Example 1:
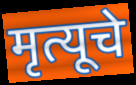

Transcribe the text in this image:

मृत्यूचे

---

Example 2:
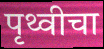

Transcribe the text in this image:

पृथ्वीचा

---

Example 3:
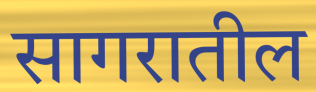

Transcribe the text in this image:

सागरातील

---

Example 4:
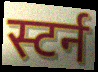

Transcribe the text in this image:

स्टर्न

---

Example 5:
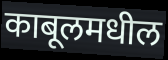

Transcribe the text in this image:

काबूलमधील